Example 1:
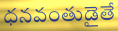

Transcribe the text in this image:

ధనవంతుడైతే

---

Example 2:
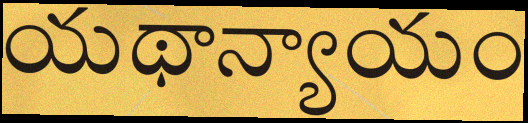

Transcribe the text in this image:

యథాన్యాయం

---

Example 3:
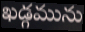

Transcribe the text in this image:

ఖడ్గమును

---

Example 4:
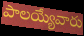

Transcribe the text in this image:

పాలయ్యేవారు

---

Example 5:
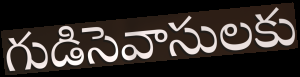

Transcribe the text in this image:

గుడిసెవాసులకు